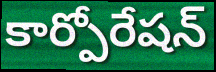
కార్పోరేషన్